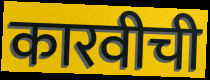
कारवीची